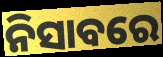
ନିସାବରେ